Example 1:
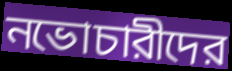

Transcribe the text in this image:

নভোচারীদের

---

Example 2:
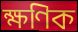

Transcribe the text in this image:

ক্ষণিক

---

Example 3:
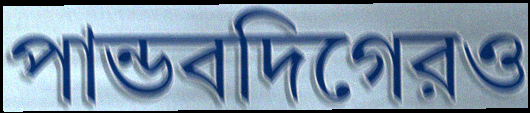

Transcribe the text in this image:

পান্ডবদিগেরও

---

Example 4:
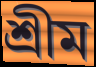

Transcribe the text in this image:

শ্রীম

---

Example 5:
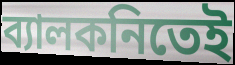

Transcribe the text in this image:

ব্যালকনিতেই